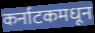
कर्नाटकमधून